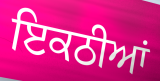
ਇਕਠੀਆਂ